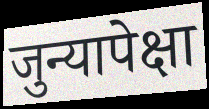
जुन्यापेक्षा